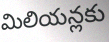
మిలియన్లకు